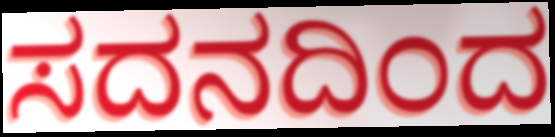
ಸದನದಿಂದ